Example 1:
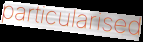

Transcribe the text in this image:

particularised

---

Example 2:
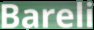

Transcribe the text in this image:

Bareli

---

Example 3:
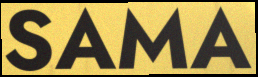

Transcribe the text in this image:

SAMA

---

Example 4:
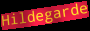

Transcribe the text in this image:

Hildegarde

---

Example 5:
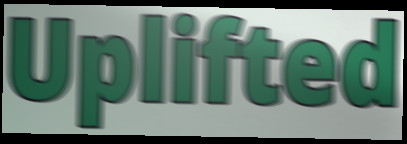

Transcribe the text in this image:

Uplifted